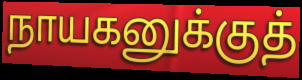
நாயகனுக்குத்